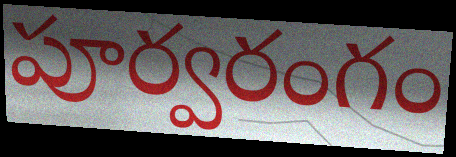
పూర్వరంగం